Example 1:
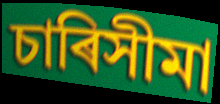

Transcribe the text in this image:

চাৰিসীমা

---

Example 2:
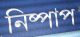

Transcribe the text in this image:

নিষ্পাপ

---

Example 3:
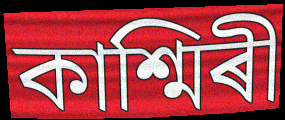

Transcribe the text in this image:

কাশ্মিৰী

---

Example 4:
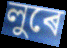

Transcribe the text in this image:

লুৰে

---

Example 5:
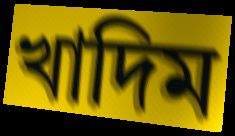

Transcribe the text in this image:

খাদিম